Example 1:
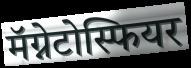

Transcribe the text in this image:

मॅग्नेटोस्फियर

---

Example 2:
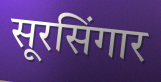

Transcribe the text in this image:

सूरसिंगार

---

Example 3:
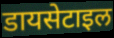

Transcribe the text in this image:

डायसेटाइल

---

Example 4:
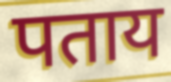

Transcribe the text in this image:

पताय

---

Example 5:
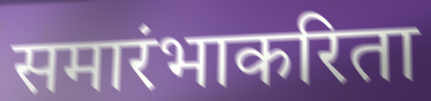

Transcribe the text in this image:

समारंभाकरिता